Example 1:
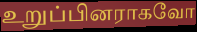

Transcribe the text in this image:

உறுப்பினராகவோ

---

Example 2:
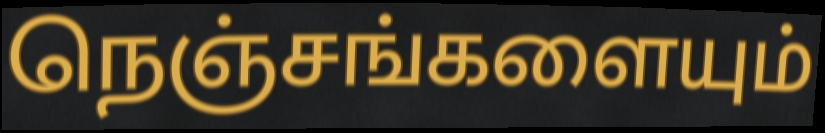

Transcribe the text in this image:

நெஞ்சங்களையும்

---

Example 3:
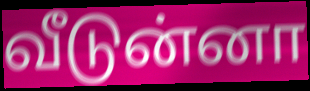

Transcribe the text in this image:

வீடுன்னா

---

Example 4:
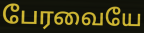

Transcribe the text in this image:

பேரவையே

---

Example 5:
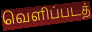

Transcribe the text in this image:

வெளிப்படத்